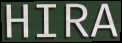
HIRA